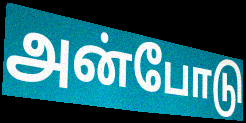
அன்போடு